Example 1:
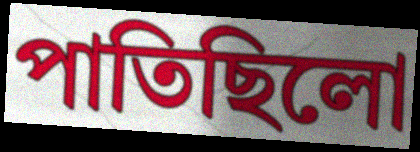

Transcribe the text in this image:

পাতিছিলো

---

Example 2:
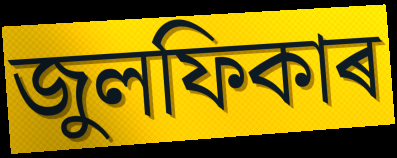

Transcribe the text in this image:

জুলফিকাৰ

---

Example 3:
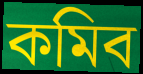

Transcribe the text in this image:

কমিব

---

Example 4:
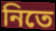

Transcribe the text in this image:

নিতে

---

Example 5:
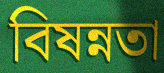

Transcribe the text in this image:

বিষন্নতা